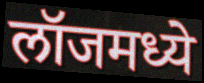
लॉजमध्ये